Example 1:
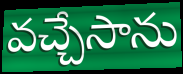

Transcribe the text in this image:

వచ్చేసాను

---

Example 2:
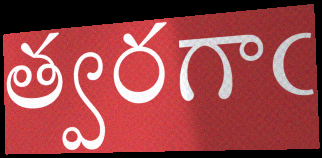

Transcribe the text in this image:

త్వరగాఁ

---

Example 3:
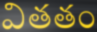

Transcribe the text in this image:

వితతం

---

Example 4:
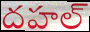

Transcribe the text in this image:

దహల్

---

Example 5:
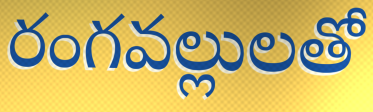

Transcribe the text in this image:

రంగవల్లులతో